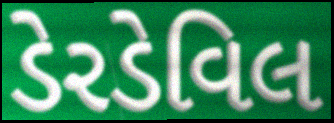
ડેરડેવિલ